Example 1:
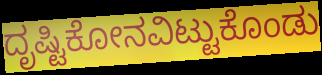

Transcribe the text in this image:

ದೃಷ್ಟಿಕೋನವಿಟ್ಟುಕೊಂಡು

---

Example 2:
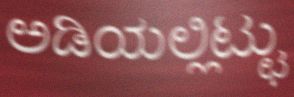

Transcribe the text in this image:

ಅಡಿಯಲ್ಲಿಟ್ಟು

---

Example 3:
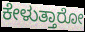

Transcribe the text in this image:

ಕೇಳುತ್ತಾರೋ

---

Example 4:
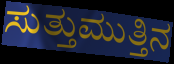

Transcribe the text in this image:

ಸುತ್ತುಮುತ್ತಿನ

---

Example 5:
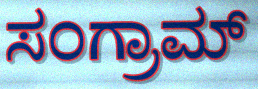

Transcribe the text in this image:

ಸಂಗ್ರಾಮ್